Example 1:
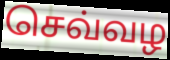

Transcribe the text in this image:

செவ்வழ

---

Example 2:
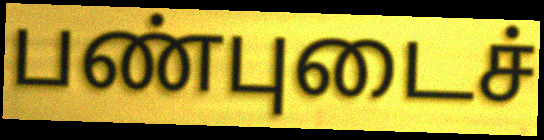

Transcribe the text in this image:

பண்புடைச்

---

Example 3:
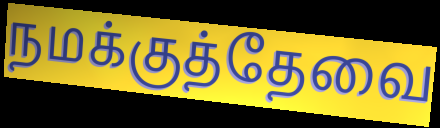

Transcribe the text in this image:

நமக்குத்தேவை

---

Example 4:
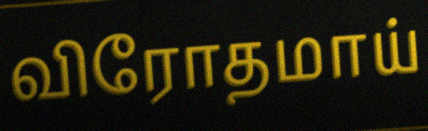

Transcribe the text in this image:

விரோதமாய்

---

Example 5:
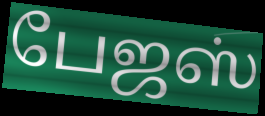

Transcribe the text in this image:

பேஜஸ்